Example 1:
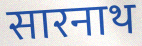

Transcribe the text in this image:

सारनाथ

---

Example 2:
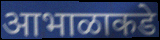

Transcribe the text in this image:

आभाळाकडे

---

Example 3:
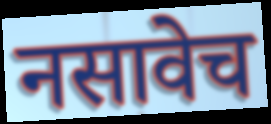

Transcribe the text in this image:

नसावेच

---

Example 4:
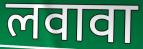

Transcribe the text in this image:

लवावा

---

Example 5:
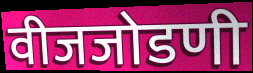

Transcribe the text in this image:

वीजजोडणी